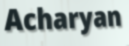
Acharyan